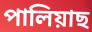
পালিয়াছ